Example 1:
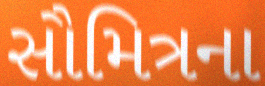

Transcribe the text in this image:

સૌમિત્રના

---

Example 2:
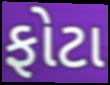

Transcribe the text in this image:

ફોટા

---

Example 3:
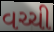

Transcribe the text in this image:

વચ્ચી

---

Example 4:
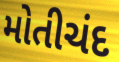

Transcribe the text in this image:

મોતીચંદ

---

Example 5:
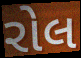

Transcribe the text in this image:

રોલ